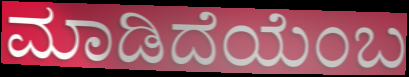
ಮಾಡಿದೆಯೆಂಬ